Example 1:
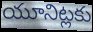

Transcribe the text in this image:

యూనిట్లకు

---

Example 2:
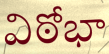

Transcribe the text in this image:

విఠోభా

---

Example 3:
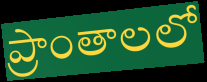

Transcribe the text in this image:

ప్రాంతాలలో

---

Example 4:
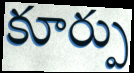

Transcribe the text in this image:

కూర్పు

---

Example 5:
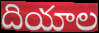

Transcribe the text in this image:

దియాల